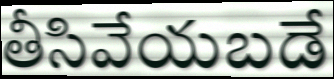
తీసివేయబడే